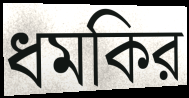
ধমকির